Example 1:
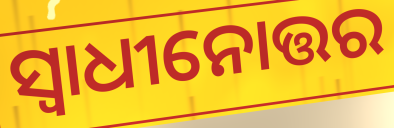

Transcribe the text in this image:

ସ୍ୱାଧୀନୋତ୍ତର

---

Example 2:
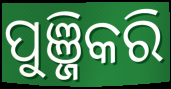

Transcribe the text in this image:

ପୁଞ୍ଜିକରି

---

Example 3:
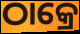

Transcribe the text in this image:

ଠାକ୍ରେ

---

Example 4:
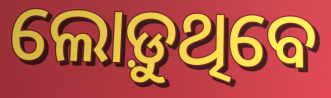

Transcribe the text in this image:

ଲୋଡ଼ୁଥିବେ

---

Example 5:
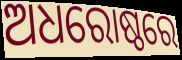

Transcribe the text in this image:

ଅଧରୋଷ୍ଠରେ